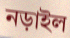
নড়াইল